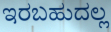
ಇರಬಹುದಲ್ಲ